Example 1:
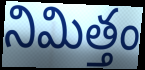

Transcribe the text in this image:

నిమిత్తం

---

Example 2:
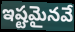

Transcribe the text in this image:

ఇష్టమైనవే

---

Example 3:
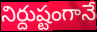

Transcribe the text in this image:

నిర్దుష్టంగానే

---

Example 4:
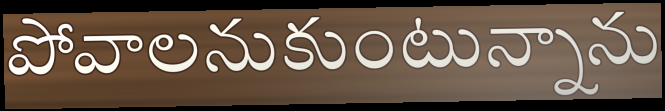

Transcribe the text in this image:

పోవాలనుకుంటున్నాను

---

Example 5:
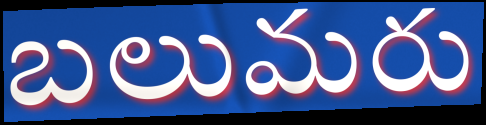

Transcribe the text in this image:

బలుమరు